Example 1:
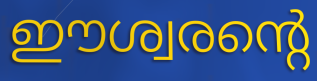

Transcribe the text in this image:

ഈശ്വരന്റെ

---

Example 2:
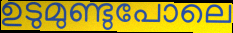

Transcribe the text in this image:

ഉടുമുണ്ടുപോലെ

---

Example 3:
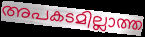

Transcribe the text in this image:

അപകടമില്ലാത്ത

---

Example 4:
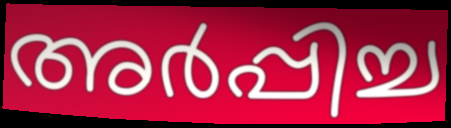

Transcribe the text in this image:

അർപ്പിച്ച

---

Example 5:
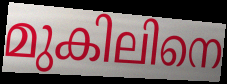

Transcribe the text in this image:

മുകിലിനെ